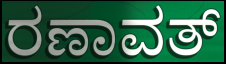
ರಣಾವತ್